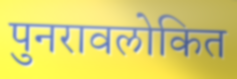
पुनरावलोकित